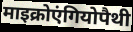
माइक्रोएंगियोपैथी